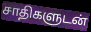
சாதிகளுடன்